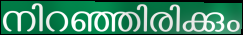
നിറഞ്ഞിരിക്കും